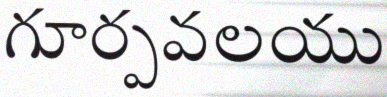
గూర్పవలయు